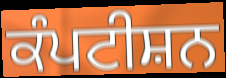
ਕੰਪਟੀਸ਼ਨ